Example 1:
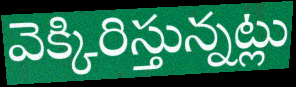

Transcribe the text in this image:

వెక్కిరిస్తున్నట్లు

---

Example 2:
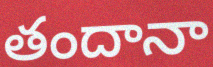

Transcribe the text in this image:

తందానా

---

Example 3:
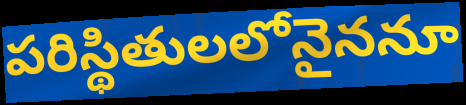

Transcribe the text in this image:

పరిస్థితులలోనైననూ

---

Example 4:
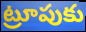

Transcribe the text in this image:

ట్రూపుకు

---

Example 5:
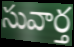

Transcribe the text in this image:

సువార్త